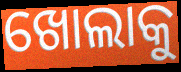
ଖୋଲାକୁ